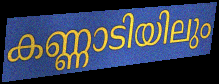
കണ്ണാടിയിലും